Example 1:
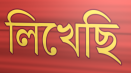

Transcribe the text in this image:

লিখেছি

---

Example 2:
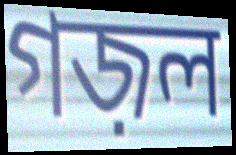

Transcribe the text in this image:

গজ়ল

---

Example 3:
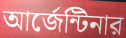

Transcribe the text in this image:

আর্জেন্টিনার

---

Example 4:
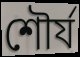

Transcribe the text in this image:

শৌর্য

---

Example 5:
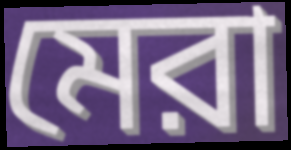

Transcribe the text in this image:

মেরা